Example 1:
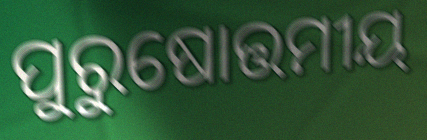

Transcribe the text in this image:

ପୁରୁଷୋତ୍ତମୀୟ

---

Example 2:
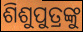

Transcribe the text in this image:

ଶିଶୁପୁତ୍ରଙ୍କୁ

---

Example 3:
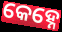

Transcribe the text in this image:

କେହ୍ନେ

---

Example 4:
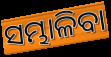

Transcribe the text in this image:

ସମ୍ଭାଳିବା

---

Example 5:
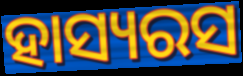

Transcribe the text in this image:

ହାସ୍ୟରସ